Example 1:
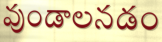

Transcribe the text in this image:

వుండాలనడం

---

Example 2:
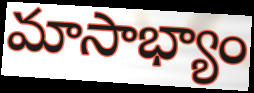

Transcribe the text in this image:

మాసాభ్యాం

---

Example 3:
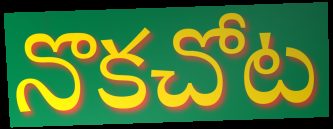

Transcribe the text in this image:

నొకచోట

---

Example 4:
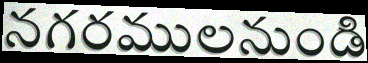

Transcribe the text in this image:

నగరములనుండి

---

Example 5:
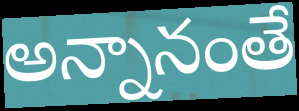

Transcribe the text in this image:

అన్నానంతే